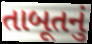
તાબૂતનું